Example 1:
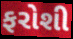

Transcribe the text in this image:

ફરોશી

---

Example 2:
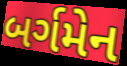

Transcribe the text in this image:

બર્ગમેન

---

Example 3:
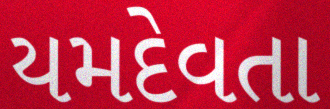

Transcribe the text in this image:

યમદેવતા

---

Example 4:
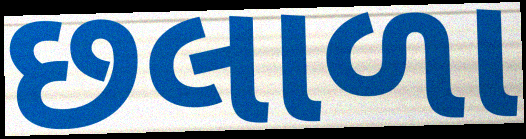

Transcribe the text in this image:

છલાળા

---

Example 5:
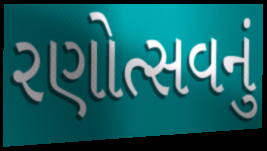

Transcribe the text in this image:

રણોત્સવનું